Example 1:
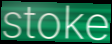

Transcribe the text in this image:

stoke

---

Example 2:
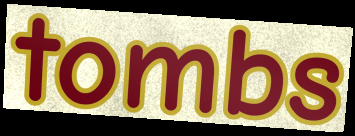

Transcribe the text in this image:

tombs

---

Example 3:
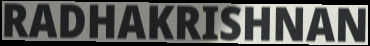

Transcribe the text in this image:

RADHAKRISHNAN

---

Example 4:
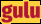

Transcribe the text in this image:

gulu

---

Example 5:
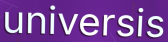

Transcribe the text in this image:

universis